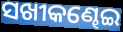
ସଖୀକଣ୍ଢେଇ